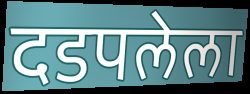
दडपलेला